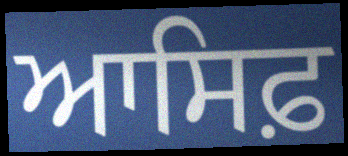
ਆਸਿਫ਼